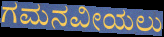
ಗಮನವೀಯಲು